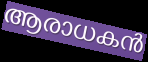
ആരാധകൻ